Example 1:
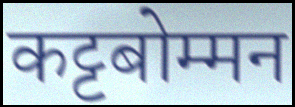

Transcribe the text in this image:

कट्टबोम्मन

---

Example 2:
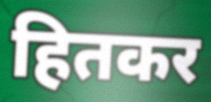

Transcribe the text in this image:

हितकर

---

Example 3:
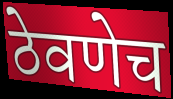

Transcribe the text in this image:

ठेवणेच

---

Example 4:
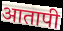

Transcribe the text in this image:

आतापी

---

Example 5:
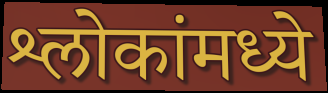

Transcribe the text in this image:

श्लोकांमध्ये